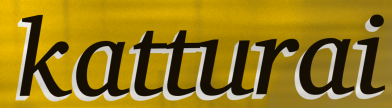
katturai